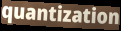
quantization